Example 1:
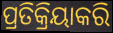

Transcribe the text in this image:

ପ୍ରତିକ୍ରିୟାକରି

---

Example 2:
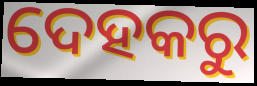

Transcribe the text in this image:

ଦେହକରୁ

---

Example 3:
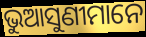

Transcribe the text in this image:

ଭୁଆସୁଣୀମାନେ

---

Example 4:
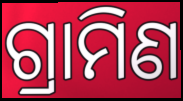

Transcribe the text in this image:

ଗ୍ରାମିଣ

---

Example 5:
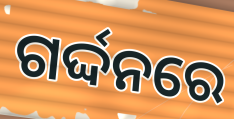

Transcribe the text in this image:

ଗର୍ଦ୍ଦନରେ